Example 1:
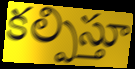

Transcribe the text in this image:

కల్పిస్తూ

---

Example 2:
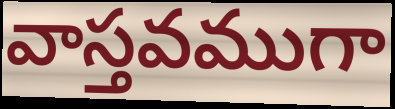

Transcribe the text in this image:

వాస్తవముగా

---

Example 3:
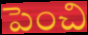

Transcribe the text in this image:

పెంచి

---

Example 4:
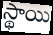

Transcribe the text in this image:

స్థాయి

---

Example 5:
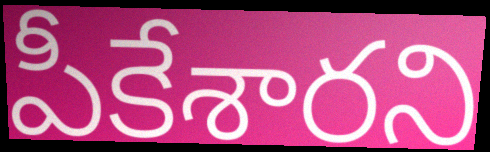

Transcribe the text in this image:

పీకేశారని